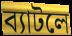
ব্যাটলে